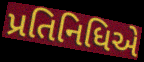
પ્રતિનિધિએ